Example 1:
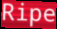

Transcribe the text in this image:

Ripe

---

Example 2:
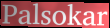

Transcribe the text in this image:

Palsokar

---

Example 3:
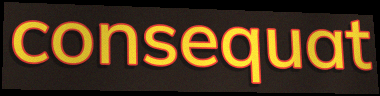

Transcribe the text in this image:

consequat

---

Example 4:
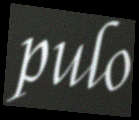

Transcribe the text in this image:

pulo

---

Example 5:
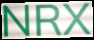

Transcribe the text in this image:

NRX